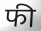
फी